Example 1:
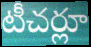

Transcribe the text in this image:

టీచర్లూ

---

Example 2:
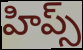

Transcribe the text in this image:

హిప్స్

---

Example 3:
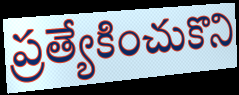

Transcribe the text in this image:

ప్రత్యేకించుకొని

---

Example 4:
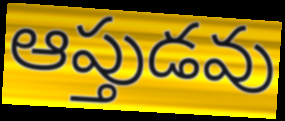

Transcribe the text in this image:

ఆప్తుడవు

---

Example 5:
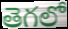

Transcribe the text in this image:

తెగలో